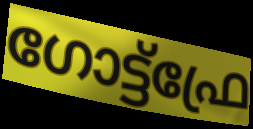
ഗോട്ട്ഫ്രേ